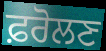
ਫ਼ਰੋਲਣ